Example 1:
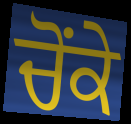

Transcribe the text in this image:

ਚੋਂਕੇ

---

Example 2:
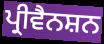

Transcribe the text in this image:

ਪ੍ਰੀਵੈਨਸ਼ਨ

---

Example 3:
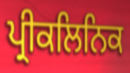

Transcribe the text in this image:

ਪ੍ਰੀਕਲਿਨਿਕ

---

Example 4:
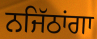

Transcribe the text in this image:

ਨਜਿੱਠਾਂਗਾ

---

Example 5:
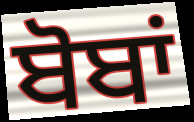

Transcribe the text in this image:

ਬੋਬਾਂ